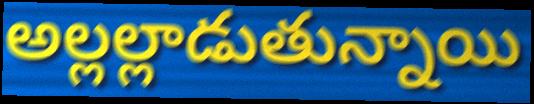
అల్లల్లాడుతున్నాయి